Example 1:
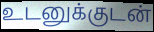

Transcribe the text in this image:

உடனுக்குடன்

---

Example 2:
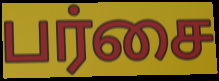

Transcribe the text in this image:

பர்சை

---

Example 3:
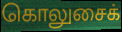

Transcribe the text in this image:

கொலுசைக்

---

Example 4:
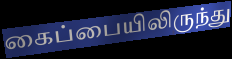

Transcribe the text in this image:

கைப்பையிலிருந்து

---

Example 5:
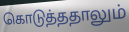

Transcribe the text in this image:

கொடுத்ததாலும்